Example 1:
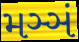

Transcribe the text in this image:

મઞ્ઞં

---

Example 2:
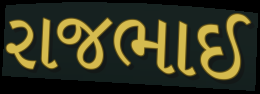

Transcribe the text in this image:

રાજભાઈ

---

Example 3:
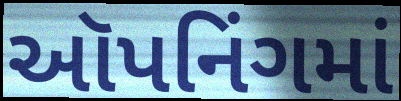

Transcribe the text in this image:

ઑપનિંગમાં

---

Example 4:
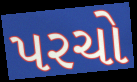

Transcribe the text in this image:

પરચો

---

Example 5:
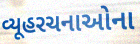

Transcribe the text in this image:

વ્યૂહરચનાઓના